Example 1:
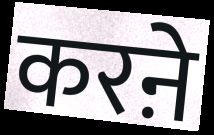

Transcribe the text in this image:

करऩे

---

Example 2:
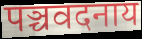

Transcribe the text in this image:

पञ्चवदनाय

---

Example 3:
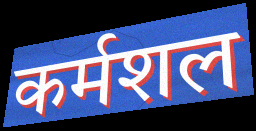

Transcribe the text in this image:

कर्मशल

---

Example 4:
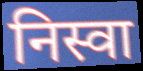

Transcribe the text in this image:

निस्वा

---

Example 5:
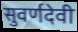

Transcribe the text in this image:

सुवर्णदेवी